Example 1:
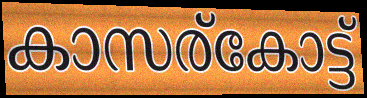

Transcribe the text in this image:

കാസര്കോട്ട്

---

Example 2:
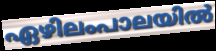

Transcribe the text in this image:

ഏഴിലംപാലയിൽ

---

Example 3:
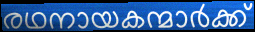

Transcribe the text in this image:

രഥനായകന്മാർക്ക്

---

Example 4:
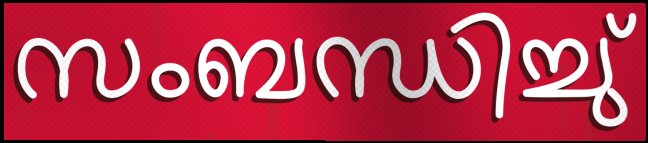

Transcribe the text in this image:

സംബന്ധിച്ചു്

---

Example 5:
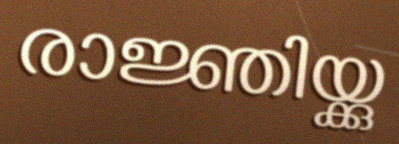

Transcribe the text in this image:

രാജ്ഞിയ്ക്കു